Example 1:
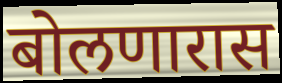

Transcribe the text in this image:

बोलणारास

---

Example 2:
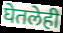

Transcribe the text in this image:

घेतलेही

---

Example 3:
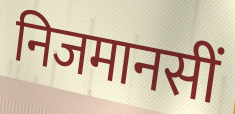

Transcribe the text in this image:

निजमानसीं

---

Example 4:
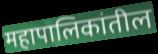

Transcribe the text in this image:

महापालिकांतील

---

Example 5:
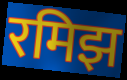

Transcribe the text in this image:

रमिझ